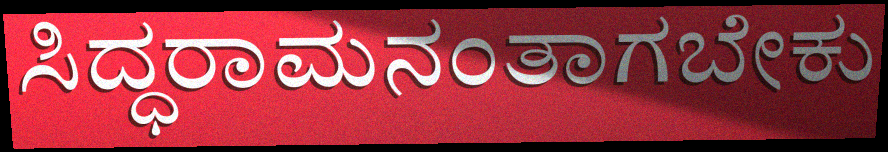
ಸಿದ್ಧರಾಮನಂತಾಗಬೇಕು